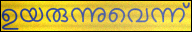
ഉയരുന്നുവെന്ന്